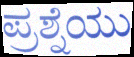
ಪ್ರಶ್ನೆಯು